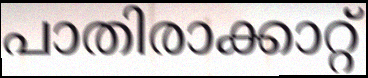
പാതിരാക്കാറ്റ്